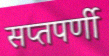
सप्तपर्णी